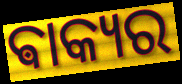
ଵାକ୍ଯର